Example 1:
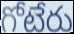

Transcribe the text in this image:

గోటేరు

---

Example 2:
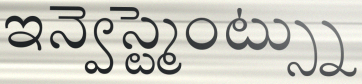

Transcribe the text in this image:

ఇన్వెస్ట్మెంట్స్ను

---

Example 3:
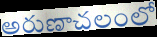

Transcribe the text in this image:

అరుణాచలంలో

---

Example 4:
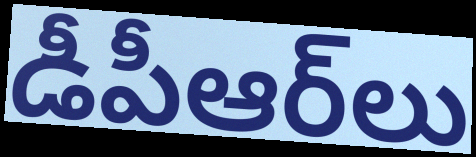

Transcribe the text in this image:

డీపీఆర్‌లు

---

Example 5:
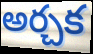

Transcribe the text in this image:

అర్చక